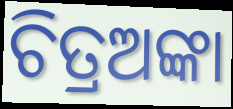
ଚିତ୍ରଅଙ୍କା